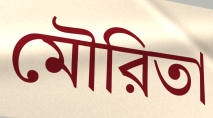
মৌরিতা